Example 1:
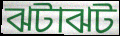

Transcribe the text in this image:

ঝটাঝট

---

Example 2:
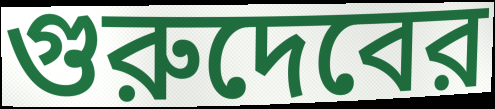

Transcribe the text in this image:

গুরুদেবের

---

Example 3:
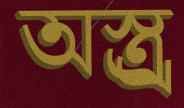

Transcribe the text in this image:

অস্ত্র্র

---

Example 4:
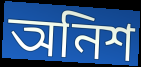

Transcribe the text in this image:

অনিশ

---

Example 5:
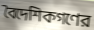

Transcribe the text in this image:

বৈদেশিকগণের